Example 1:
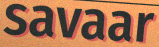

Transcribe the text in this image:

savaar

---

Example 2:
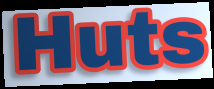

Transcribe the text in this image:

Huts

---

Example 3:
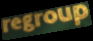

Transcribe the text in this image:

regroup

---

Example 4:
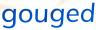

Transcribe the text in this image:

gouged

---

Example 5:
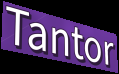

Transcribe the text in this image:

Tantor